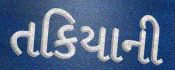
તકિયાની